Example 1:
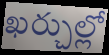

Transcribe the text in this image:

ఖర్చుల్లో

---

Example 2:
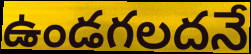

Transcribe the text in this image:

ఉండగలదనే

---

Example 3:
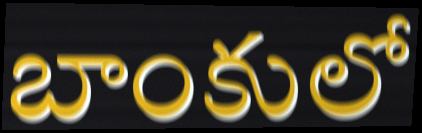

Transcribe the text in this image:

బాంకులో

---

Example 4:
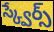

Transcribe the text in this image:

స్క్వేర్స్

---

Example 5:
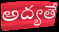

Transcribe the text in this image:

అద్యతే